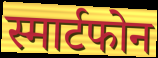
स्‍मार्टफोन